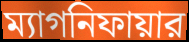
ম্যাগনিফায়ার